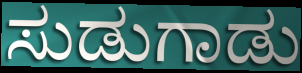
ಸುಡುಗಾಡು